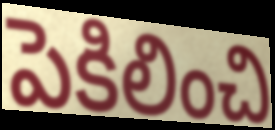
పెకిలించి